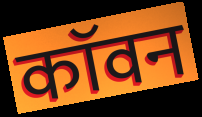
कॉवन